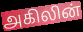
அகிலின்